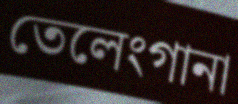
তেলেংগানা